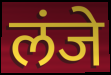
लंजे